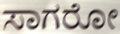
ಸಾಗರೋ